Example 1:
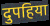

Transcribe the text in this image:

दुपहिया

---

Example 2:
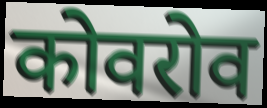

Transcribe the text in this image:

कोवरोव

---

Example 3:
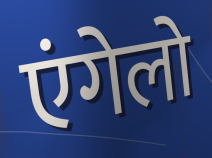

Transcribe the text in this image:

एंगेलो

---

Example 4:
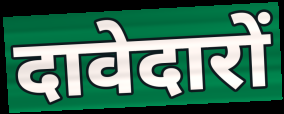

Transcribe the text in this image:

दावेदारों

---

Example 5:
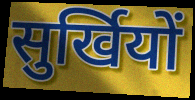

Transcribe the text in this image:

सुर्खियों